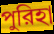
পুরিহা